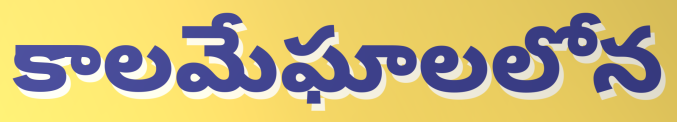
కాలమేఘాలలోన